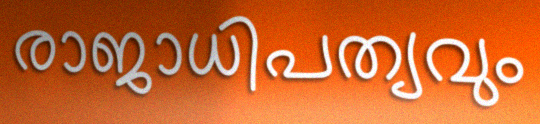
രാജാധിപത്യവും